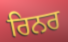
ਰਿਨਰ